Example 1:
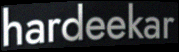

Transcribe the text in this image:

hardeekar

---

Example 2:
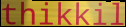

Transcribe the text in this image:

thikkil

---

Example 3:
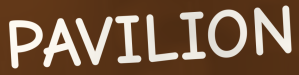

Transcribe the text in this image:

PAVILION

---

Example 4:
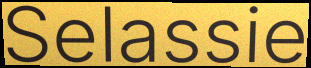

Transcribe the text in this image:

Selassie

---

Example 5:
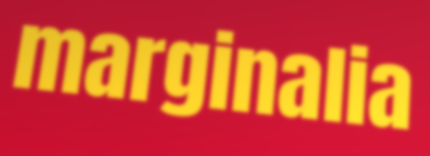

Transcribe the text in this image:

marginalia